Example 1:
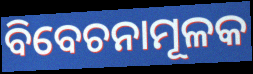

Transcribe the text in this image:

ବିବେଚନାମୂଳକ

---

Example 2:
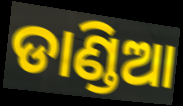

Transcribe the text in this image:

ଡାଣ୍ଡିଆ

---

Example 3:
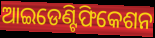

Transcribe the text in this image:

ଆଇଡେଣ୍ଟିଫିକେଶନ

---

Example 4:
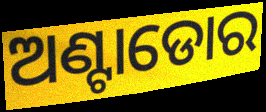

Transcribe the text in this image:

ଅଣ୍ଟାଡୋର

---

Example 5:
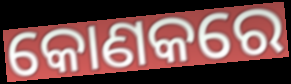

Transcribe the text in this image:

କୋଣକରେ